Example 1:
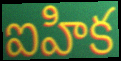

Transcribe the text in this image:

ఐహిక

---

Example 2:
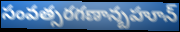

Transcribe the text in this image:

సంవత్సరగణాన్బహూన్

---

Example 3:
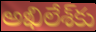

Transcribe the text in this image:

అఖిలేశ్‌కు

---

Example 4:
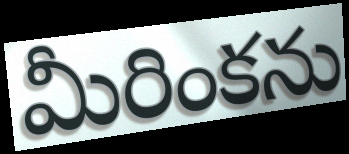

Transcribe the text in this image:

మీరింకను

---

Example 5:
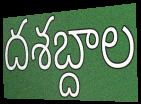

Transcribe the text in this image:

దశబ్దాల